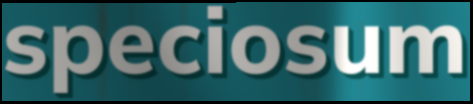
speciosum